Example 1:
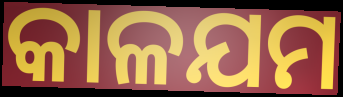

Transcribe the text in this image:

କାଳଯମ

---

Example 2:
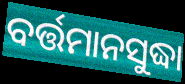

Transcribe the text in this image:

ବର୍ତ୍ତମାନସୁଦ୍ଧା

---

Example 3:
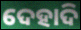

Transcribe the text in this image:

ଦେହାଦି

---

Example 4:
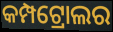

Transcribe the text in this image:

କମ୍ପଟ୍ରୋଲର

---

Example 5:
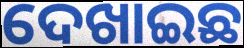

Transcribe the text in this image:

ଦେଖାଇଛ